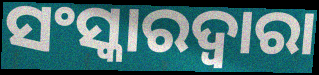
ସଂସ୍କାରଦ୍ୱାରା